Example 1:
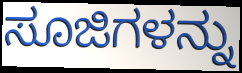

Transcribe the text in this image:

ಸೂಜಿಗಳನ್ನು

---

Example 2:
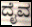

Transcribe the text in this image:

ದೈವ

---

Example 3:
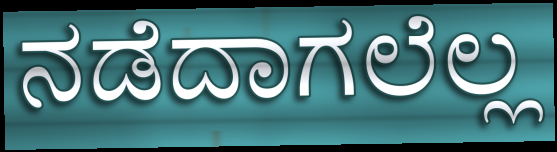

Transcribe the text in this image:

ನಡೆದಾಗಲೆಲ್ಲ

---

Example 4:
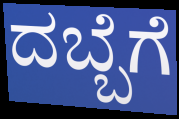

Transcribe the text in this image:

ದಬ್ಬೆಗೆ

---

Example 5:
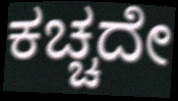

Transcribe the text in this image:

ಕಚ್ಚದೇ